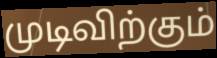
முடிவிற்கும்